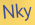
Nky